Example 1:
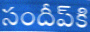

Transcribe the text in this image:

సందీప్‌కి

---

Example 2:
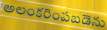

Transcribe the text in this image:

అలంకరింపబడెను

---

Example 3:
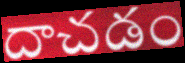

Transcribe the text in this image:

దాచడం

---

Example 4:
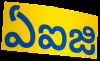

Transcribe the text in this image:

ఏఐజి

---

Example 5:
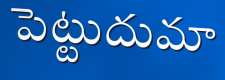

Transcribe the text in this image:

పెట్టుదుమా